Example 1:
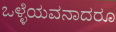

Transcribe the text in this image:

ಒಳ್ಳೆಯವನಾದರೂ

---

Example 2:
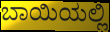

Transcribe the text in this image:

ಬಾಯಿಯಲ್ಲಿ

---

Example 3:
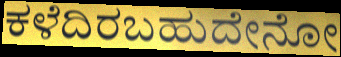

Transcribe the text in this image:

ಕಳೆದಿರಬಹುದೇನೋ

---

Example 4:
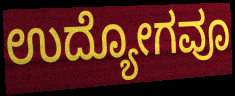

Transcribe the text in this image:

ಉದ್ಯೋಗವೂ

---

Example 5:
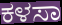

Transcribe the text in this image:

ಕಳಸಾ